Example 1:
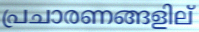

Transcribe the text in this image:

പ്രചാരണങ്ങളില്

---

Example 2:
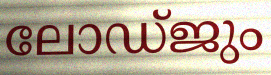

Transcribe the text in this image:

ലോഡ്ജും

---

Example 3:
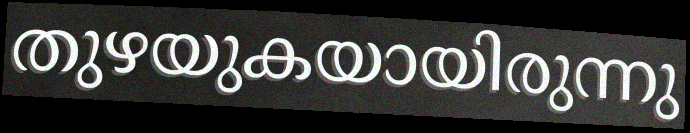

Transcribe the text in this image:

തുഴയുകയായിരുന്നു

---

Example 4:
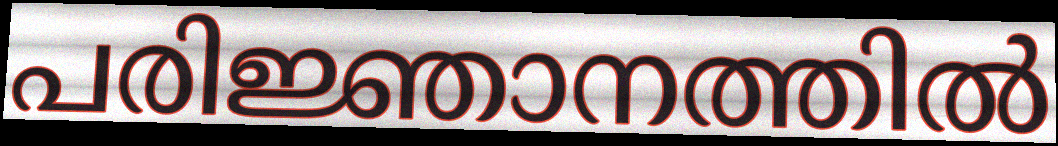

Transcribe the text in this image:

പരിജ്ഞാനത്തിൽ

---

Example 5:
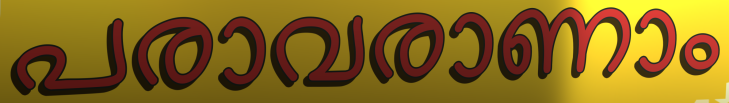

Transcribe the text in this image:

പരാവരാണാം